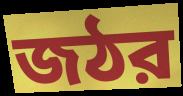
জঠর